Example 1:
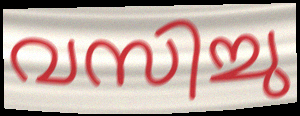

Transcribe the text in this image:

വസിച്ചു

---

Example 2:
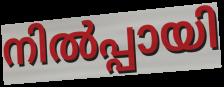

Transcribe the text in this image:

നിൽപ്പായി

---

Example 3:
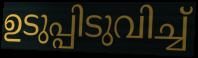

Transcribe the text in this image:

ഉടുപ്പിടുവിച്ച്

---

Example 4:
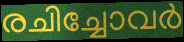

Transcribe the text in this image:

രചിച്ചോവർ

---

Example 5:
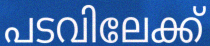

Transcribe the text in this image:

പടവിലേക്ക്